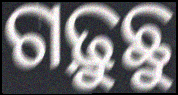
ଗଢ଼ୁଛୁ